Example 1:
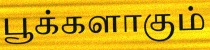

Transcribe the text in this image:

பூக்களாகும்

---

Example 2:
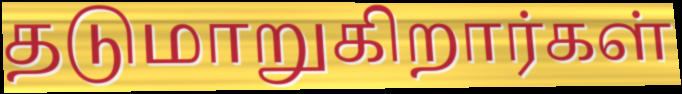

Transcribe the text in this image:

தடுமாறுகிறார்கள்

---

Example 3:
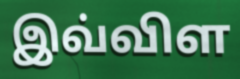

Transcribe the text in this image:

இவ்விள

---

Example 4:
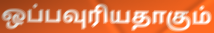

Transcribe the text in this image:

ஒப்பவுரியதாகும்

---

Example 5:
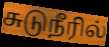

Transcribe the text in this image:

சுடுநீரில்